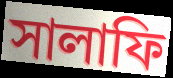
সালাফি